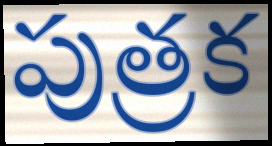
పుత్రక